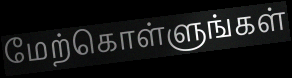
மேற்கொள்ளுங்கள்